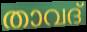
താവദ്